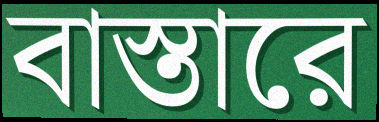
বাস্তারে